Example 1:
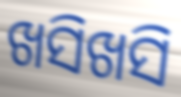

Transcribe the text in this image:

ଖସିଖସି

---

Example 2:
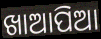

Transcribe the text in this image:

ଖାଆପିଆ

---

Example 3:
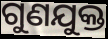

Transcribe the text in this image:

ଗୁଣଯୁକ୍ତ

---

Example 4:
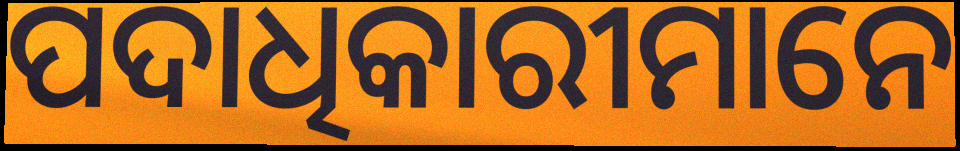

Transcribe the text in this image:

ପଦାଧିକାରୀମାନେ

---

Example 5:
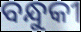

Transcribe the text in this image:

ବନ୍ଧୁକୀ